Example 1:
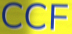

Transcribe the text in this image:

CCF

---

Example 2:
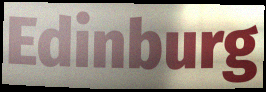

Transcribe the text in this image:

Edinburg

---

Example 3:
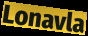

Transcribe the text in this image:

Lonavla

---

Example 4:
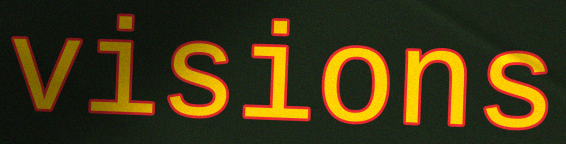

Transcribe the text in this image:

visions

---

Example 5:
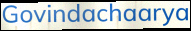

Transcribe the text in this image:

Govindachaarya